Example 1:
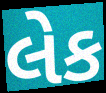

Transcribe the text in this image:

લેક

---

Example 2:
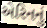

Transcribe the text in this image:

એરિનનું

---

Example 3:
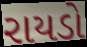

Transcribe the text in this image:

રાયડો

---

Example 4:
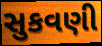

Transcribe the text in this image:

સુકવણી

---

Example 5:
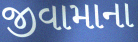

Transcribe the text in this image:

જીવામાના